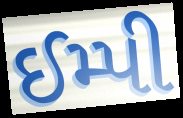
ઈમ્પી